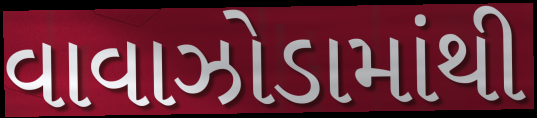
વાવાઝોડામાંથી